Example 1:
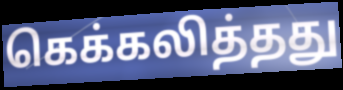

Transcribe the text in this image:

கெக்கலித்தது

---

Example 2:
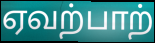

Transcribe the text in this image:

ஏவற்பாற்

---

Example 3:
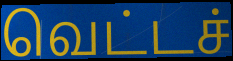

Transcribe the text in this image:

வெட்டச்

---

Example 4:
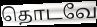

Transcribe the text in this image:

தொடவே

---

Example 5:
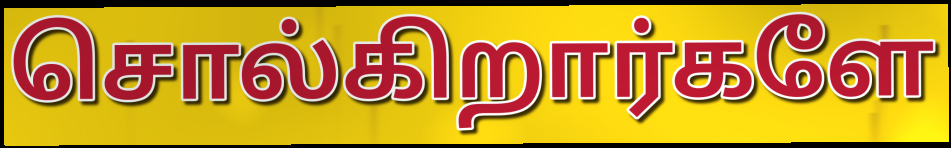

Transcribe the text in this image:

சொல்கிறார்களே